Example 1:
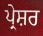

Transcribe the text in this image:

ਪ੍ਰੇਸ਼ਰ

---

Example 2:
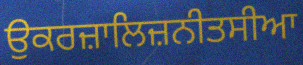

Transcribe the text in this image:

ਉਕਰਜ਼ਾਲਿਜ਼ਨੀਤਸੀਆ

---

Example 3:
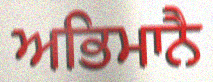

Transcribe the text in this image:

ਅਭਿਮਾਨੈ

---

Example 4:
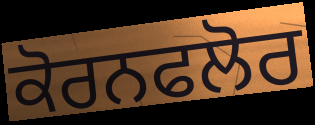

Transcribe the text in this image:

ਕੋਰਨਫਲੋਰ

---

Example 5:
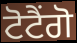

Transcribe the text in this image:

ਟੋਟੈਂਗੋ